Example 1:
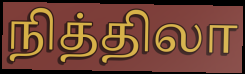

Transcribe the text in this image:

நித்திலா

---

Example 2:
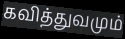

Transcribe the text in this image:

கவித்துவமும்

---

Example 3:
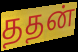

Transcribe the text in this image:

ததன்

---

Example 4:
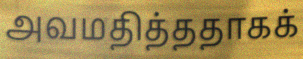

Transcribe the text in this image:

அவமதித்ததாகக்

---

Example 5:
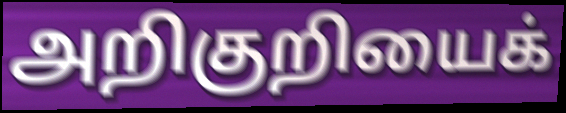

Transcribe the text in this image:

அறிகுறியைக்